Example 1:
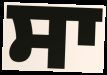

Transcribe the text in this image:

ਸਾ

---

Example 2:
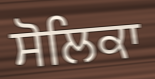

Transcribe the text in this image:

ਸੋਲਿਕਾ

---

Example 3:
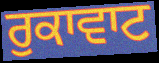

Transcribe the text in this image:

ਰੁਕਾਵਾਟ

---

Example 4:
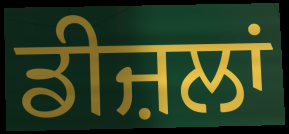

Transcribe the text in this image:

ਡੀਜ਼ਲਾਂ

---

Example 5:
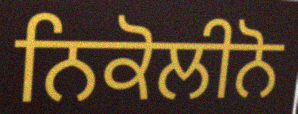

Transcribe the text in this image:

ਨਿਕੋਲੀਨੋ